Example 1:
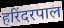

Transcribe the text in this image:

हरिंदरपाल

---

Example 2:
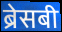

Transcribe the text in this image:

ब्रेसबी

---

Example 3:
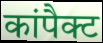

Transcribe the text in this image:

कांपैक्ट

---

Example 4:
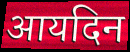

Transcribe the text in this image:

आयदिन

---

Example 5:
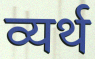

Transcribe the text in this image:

व्यर्थ